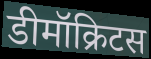
डीमॉक्रिटस